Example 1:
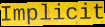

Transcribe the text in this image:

Implicit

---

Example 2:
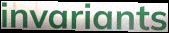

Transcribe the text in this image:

invariants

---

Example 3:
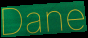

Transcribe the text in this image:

Dane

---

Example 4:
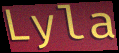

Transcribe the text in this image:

Lyla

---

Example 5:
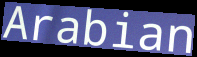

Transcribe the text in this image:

Arabian